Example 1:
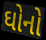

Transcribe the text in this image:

ઘોનો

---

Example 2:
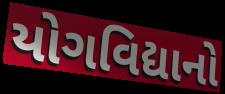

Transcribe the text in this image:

યોગવિદ્યાનો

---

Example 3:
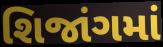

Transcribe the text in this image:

શિજાંગમાં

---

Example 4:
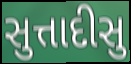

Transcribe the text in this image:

સુત્તાદીસુ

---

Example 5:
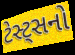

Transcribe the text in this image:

ટેસ્ટ્સનો